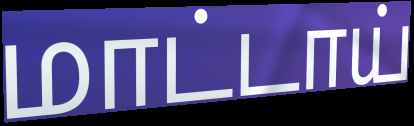
மாட்டாய்